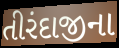
તીરંદાજીના